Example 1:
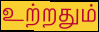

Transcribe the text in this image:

உற்றதும்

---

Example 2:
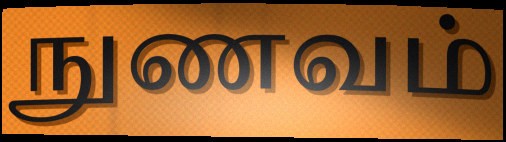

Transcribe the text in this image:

நுணவம்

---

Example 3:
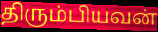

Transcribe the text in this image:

திரும்பியவன்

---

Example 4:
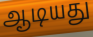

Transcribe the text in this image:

ஆடியது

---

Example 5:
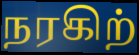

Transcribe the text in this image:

நரகிற்